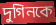
দুগিনকে